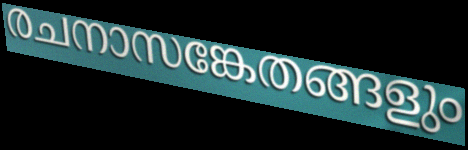
രചനാസങ്കേതങ്ങളും